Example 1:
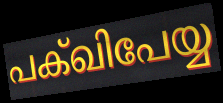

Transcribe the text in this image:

പക്ഖിപേയ്യ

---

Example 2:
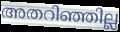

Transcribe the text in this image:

അതറിഞ്ഞില്ല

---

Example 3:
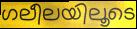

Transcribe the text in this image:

ഗലീലയിലൂടെ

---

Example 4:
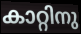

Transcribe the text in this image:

കാറ്റിനു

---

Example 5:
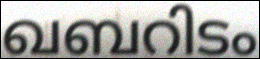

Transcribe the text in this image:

ഖബറിടം